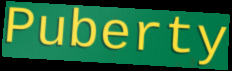
Puberty